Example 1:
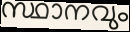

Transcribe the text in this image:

സ്ഥാനവും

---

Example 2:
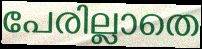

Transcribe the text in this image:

പേരില്ലാതെ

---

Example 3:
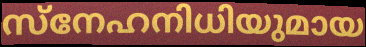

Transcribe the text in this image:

സ്നേഹനിധിയുമായ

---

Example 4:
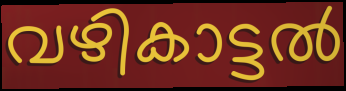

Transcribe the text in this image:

വഴികാട്ടൽ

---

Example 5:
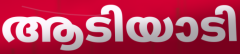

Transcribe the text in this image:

ആടിയാടി